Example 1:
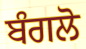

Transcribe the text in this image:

ਬੰਗਲੋ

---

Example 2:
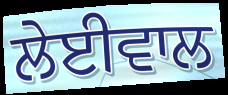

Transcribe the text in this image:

ਲੇਈਵਾਲ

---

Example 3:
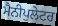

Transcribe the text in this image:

ਮੈਨੀਪੁਲੇਟਰ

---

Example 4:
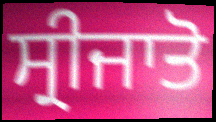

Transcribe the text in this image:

ਸ੍ਰੀਜਾਤੋ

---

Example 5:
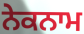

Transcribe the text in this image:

ਨੇਕਨਾਮ